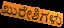
ಖುರೇಶಿಗಳು